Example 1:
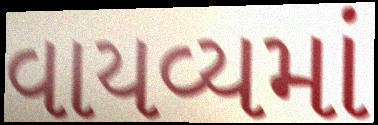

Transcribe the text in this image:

વાયવ્યમાં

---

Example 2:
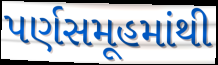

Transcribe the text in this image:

પર્ણસમૂહમાંથી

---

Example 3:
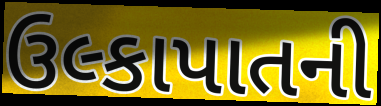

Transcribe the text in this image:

ઉલ્કાપાતની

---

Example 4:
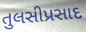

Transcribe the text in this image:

તુલસીપ્રસાદ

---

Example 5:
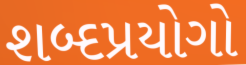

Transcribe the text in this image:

શબ્દપ્રયોગો